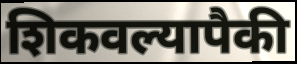
शिकवल्यापैकी